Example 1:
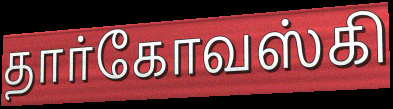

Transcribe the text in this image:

தார்கோவஸ்கி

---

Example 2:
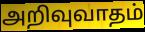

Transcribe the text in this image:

அறிவுவாதம்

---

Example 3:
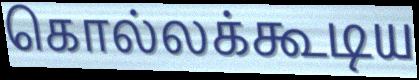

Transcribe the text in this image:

கொல்லக்கூடிய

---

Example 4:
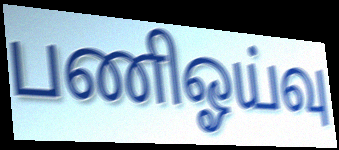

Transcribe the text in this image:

பணிஓய்வு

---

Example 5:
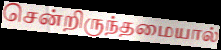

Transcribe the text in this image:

சென்றிருந்தமையால்